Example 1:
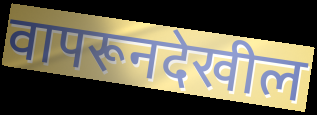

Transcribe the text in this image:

वापरूनदेखील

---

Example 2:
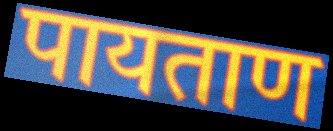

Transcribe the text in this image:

पायताण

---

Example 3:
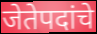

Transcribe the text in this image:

जेतेपदांचे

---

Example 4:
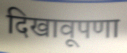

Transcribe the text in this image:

दिखावूपणा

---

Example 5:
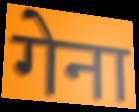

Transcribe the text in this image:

गेना